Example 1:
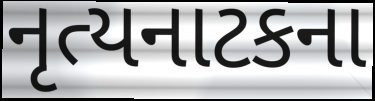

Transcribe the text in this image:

નૃત્યનાટકના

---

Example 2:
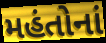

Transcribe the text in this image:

મહંતોનાં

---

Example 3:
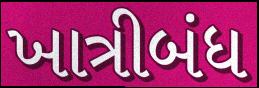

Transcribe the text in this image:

ખાત્રીબંધ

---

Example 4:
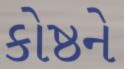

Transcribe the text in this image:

કોષ્ઠને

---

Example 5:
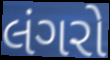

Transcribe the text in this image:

લંગરો